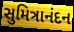
સુમિત્રાનંદન